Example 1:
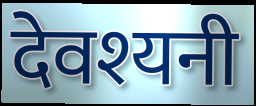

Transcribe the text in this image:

देवश्यनी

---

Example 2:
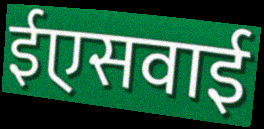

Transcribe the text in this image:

ईएसवाई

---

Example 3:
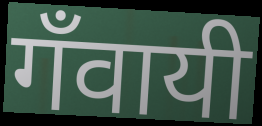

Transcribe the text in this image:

गँवायी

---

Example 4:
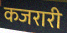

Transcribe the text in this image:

कजरारी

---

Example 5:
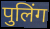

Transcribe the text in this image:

पुलिंग